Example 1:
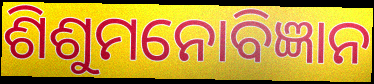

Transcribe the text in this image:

ଶିଶୁମନୋବିଜ୍ଞାନ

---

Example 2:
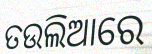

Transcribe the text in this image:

ତଉଲିଆରେ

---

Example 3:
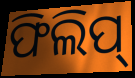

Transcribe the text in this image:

ଫିଲିପ୍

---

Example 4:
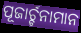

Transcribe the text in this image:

ପୂଜାର୍ଚ୍ଚନାମାନ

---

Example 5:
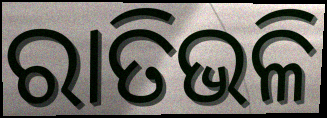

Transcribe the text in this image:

ରାତିଭଳି